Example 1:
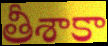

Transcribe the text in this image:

తీశాకా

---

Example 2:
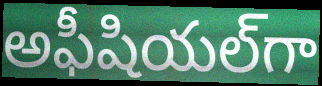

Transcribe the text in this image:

అఫీషియల్‌గా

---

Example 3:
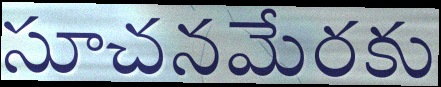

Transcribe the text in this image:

సూచనమేరకు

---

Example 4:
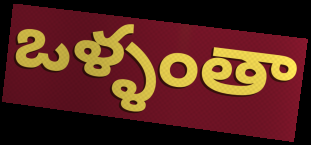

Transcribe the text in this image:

ఒళ్ళంతా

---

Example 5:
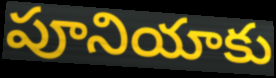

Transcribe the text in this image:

పూనియాకు